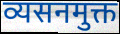
व्यसनमुक्त